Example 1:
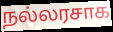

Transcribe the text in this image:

நல்லரசாக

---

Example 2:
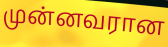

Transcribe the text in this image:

முன்னவரான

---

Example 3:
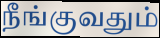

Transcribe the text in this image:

நீங்குவதும்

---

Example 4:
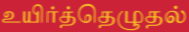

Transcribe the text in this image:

உயிர்த்தெழுதல்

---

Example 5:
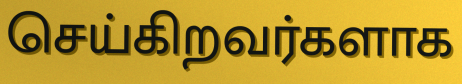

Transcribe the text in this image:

செய்கிறவர்களாக